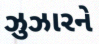
ઝુઝારને